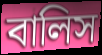
বালিস